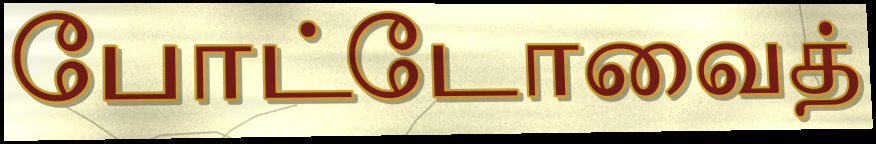
போட்டோவைத்